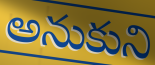
అనుకుని